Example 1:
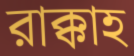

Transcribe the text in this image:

রাক্কাহ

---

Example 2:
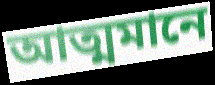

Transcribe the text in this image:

আত্মমানে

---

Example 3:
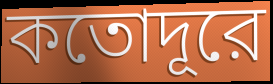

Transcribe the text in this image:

কতোদূরে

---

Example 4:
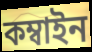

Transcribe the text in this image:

কম্বাইন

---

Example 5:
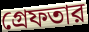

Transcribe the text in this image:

গ্রেফতার